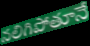
నలిగిపోతూనే